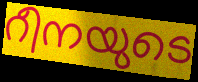
റീനയുടെ